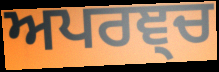
ਅਪਰਞ੍ਚ